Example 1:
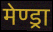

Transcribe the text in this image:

मेण्ड्रा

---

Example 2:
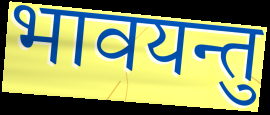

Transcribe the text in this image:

भावयन्तु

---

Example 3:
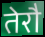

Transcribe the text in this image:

तेरौ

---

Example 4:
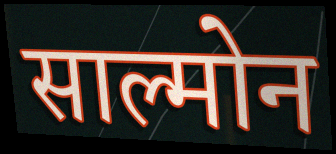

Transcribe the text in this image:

साल्मोन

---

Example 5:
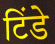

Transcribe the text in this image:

टिंडे